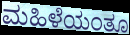
ಮಹಿಳೆಯಂತೂ